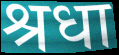
श्रधा